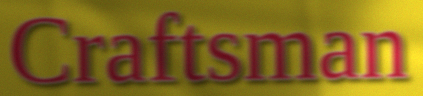
Craftsman